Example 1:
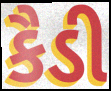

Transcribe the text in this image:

કૈડી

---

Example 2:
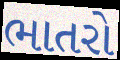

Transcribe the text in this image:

ભાતરો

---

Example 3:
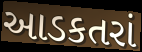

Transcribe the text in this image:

આડકતરાં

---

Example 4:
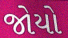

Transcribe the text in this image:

જોયો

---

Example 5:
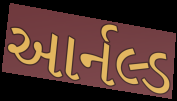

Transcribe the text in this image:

આર્નલ્ડ